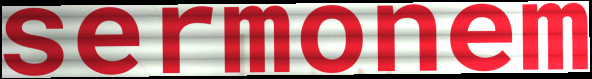
sermonem